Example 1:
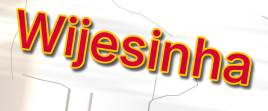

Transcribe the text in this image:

Wijesinha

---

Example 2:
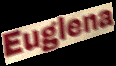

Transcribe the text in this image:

Euglena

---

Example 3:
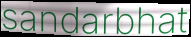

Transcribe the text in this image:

sandarbhat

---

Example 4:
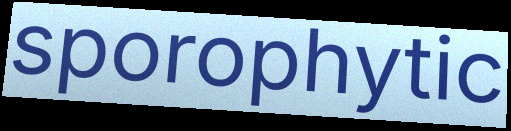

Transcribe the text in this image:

sporophytic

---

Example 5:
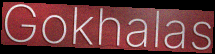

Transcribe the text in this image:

Gokhalas